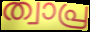
ത്വാപ്ര